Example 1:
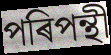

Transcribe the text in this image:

পৰিপন্থী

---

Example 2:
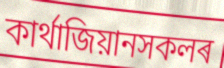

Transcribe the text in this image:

কাৰ্থাজিয়ানসকলৰ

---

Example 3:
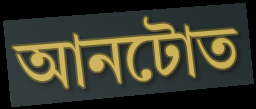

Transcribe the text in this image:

আনটোত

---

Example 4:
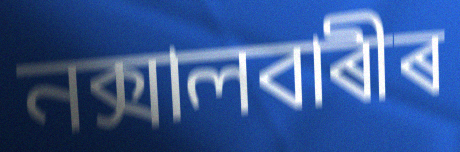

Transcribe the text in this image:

নক্সালবাৰীৰ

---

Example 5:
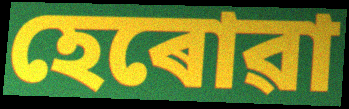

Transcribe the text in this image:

হেৰোৱা